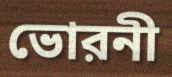
ভোরনী